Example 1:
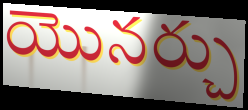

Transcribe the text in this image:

యొనర్చు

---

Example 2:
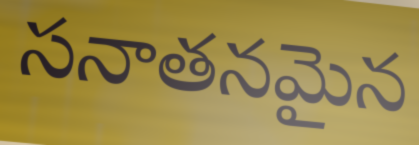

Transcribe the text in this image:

సనాతనమైన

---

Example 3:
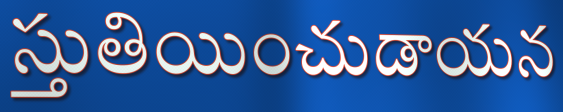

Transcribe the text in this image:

స్తుతియించుడాయన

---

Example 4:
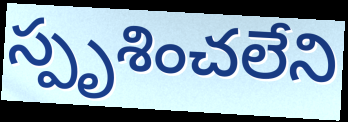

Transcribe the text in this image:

స్పృశించలేని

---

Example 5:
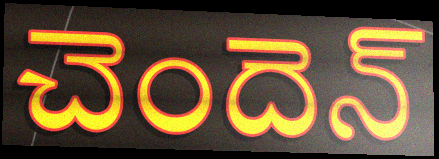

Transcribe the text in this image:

చెందెన్